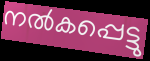
നൽകപ്പെട്ടു